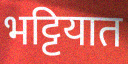
भट्टियात